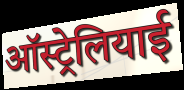
ऑस्‍ट्रेलियाई